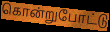
கொன்றுபோட்டு